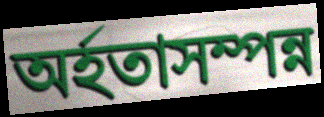
অৰ্হতাসম্পন্ন